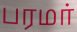
பரமர்